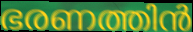
ഭരണത്തിൻ